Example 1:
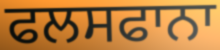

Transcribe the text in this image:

ਫਲਸਫਾਨਾ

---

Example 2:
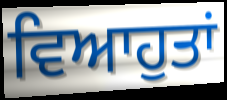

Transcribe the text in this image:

ਵਿਆਹੁਤਾਂ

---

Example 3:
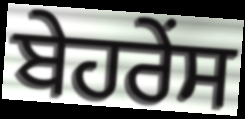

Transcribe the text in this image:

ਬੇਹਰੇਂਸ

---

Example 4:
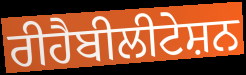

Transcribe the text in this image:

ਰੀਹੈਬੀਲੀਟੇਸ਼ਨ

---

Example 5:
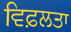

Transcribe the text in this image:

ਵਿਫ਼ਲਤਾ